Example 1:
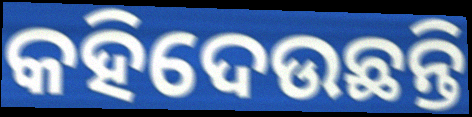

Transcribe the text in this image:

କହିଦେଉଛନ୍ତି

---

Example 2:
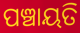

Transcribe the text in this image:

ପଞ୍ଚାୟତି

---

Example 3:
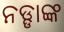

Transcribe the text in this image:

ନଡ୍ଡାଙ୍କ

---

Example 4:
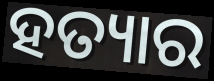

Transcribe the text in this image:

ହତ୍ୟାର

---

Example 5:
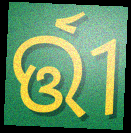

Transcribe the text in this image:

ର୍ତ୍ତୀ